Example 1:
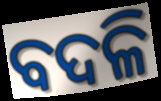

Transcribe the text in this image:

ବଦଳି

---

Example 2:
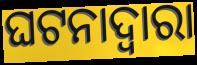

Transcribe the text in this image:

ଘଟନାଦ୍ୱାରା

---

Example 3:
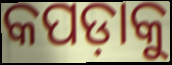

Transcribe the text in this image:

କପଡ଼ାକୁ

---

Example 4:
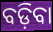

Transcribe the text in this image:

ବଡ଼ିବା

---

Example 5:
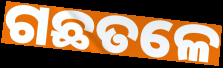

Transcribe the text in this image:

ଗଛତଳେ